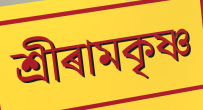
শ্ৰীৰামকৃষ্ণ